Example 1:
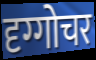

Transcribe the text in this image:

दृग्गोचर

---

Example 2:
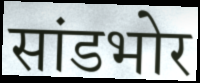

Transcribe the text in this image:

सांडभोर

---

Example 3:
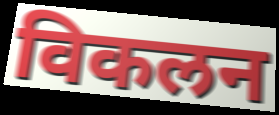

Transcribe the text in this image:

विकलन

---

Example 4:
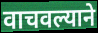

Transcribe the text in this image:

वाचवल्याने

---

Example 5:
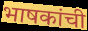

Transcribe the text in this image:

भाषकांची